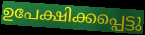
ഉപേക്ഷിക്കപ്പെട്ടു